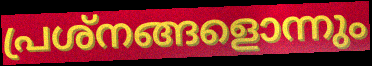
പ്രശ്നങ്ങളൊന്നും